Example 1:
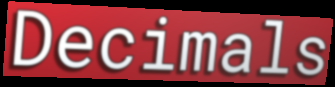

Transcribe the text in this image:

Decimals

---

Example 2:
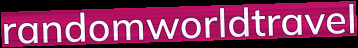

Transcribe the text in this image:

randomworldtravel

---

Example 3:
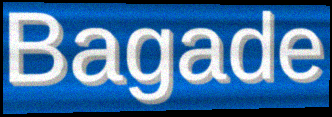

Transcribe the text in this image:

Bagade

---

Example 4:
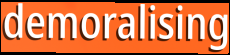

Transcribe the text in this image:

demoralising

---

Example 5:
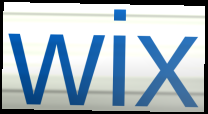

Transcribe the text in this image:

wix